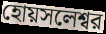
হোয়সলেশ্বর